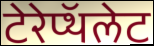
टेरेप्थॅलेट